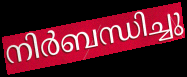
നിർബന്ധിച്ചു